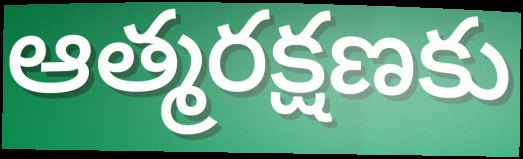
ఆత్మరక్షణకు